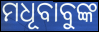
ମଧୂବାବୁଙ୍କ